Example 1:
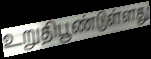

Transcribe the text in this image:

உறுதிபூண்டுள்ளது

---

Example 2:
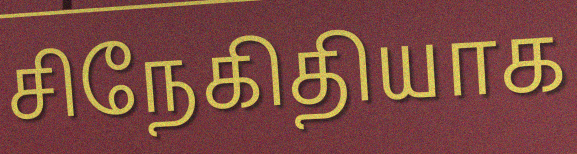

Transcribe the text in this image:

சிநேகிதியாக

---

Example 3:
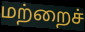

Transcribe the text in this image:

மற்றைச்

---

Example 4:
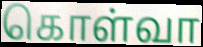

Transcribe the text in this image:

கொள்வா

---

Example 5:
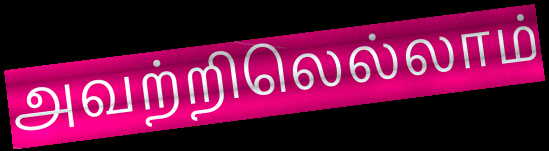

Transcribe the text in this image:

அவற்றிலெல்லாம்